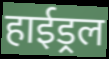
हाईड्रल